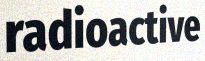
radioactive